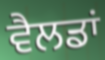
ਵੈਲਡਾਂ